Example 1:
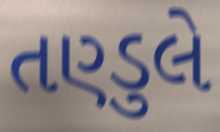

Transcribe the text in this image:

તણ્ડુલે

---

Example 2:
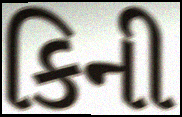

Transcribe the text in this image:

કિની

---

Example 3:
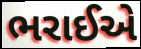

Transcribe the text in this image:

ભરાઈએ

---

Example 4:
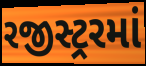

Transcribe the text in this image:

રજીસ્ટ્રરમાં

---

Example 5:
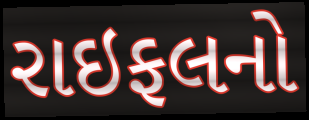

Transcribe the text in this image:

રાઇફલનો